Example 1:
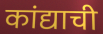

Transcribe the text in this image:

कांद्याची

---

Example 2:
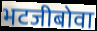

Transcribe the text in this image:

भटजीबोवा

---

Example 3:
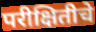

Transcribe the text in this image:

परीक्षितीचे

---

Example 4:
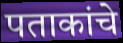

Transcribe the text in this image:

पताकांचे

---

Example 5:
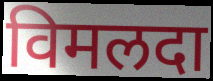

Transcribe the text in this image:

विमलदा